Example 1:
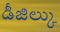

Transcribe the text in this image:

డీజిల్కు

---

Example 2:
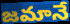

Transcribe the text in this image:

జమానే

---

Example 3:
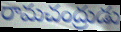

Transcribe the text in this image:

రామచంద్రుడు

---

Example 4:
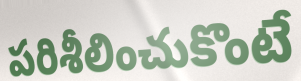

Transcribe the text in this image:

పరిశీలించుకొంటే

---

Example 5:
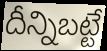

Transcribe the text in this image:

దీన్నిబట్టే